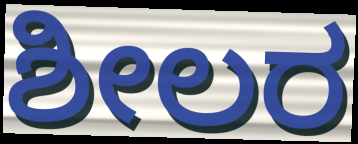
ಶೀಲರ